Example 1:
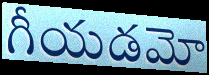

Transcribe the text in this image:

గీయడమో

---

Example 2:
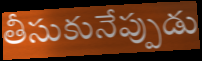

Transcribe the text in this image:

తీసుకునేప్పుడు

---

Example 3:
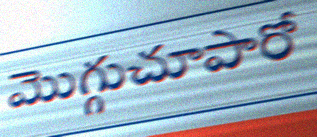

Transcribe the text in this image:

మొగ్గుచూపారో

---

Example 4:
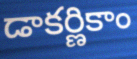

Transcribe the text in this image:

డాకర్ణికాం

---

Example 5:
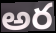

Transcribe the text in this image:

అర